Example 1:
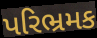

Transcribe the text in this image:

પરિભ્રમક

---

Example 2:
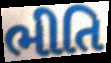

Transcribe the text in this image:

ભીતિ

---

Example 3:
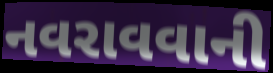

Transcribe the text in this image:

નવરાવવાની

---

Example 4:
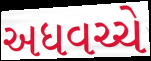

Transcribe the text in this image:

અધવચ્ચે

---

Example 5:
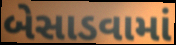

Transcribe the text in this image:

બેસાડવામાં